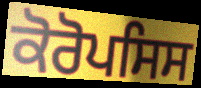
ਕੋਰੋਪਸਿਸ